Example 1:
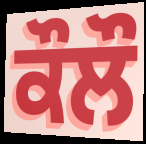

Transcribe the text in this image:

ਕੌਲੌ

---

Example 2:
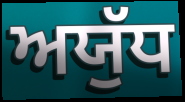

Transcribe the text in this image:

ਅਯੁੱਧ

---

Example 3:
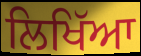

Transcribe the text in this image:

ਲਿਖਿੱਆ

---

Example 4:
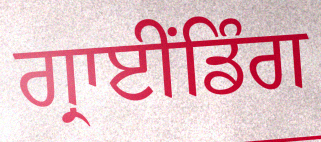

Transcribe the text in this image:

ਗ੍ਰਾਈਂਡਿੰਗ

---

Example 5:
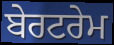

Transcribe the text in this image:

ਬੇਰਟਰੇਮ